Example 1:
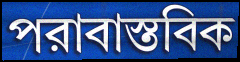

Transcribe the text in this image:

পরাবাস্তবিক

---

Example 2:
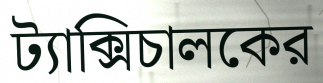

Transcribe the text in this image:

ট্যাক্সিচালকের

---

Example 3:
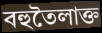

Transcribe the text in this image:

বহুতৈলাক্ত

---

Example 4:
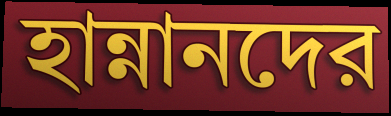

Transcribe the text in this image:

হান্নানদের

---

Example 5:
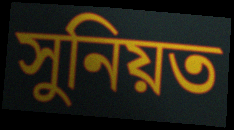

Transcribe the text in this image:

সুনিয়ত